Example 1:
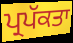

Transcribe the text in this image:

ਪ੍ਰਪੱਕਤਾ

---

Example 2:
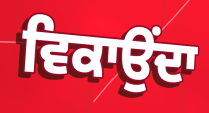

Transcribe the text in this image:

ਵਿਕਾਉੰਦਾ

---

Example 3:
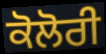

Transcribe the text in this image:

ਕੋਲੋਰੀ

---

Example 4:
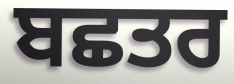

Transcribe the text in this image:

ਬਛਤਰ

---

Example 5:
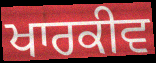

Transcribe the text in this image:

ਖਾਰਕੀਵ